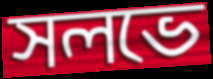
সলভে